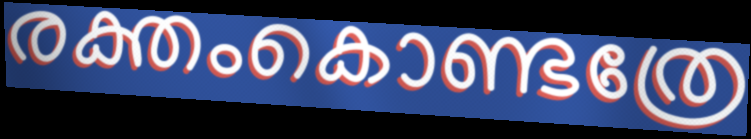
രക്തംകൊണ്ടത്രേ